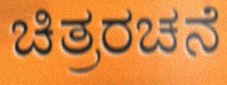
ಚಿತ್ರರಚನೆ